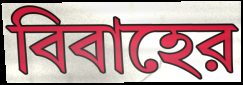
বিবাহের